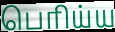
பெரிய்ய